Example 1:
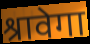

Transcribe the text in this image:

श्रावेगा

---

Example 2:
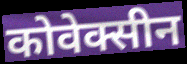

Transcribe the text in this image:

कोवेक्सीन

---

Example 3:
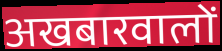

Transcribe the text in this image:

अखबारवालों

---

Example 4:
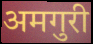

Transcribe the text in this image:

अमगुरी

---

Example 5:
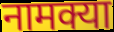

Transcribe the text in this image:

नामक्या